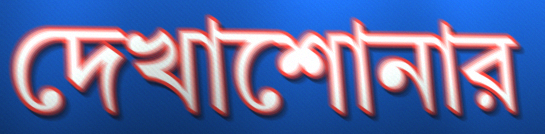
দেখাশোনার